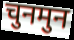
चुनमुन